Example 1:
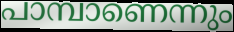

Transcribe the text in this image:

പാമ്പാണെന്നും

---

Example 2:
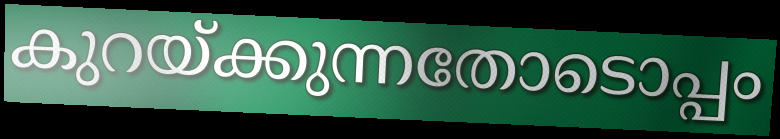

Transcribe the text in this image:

കുറയ്ക്കുന്നതോടൊപ്പം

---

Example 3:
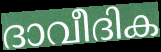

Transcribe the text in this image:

ദാവീദിക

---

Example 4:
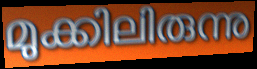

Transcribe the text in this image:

മുക്കിലിരുന്നു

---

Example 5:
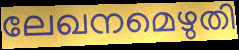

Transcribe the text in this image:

ലേഖനമെഴുതി